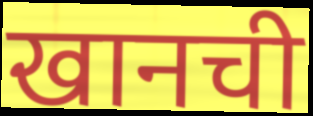
खानची